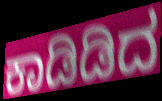
ಕಾಡಿಡಿದ